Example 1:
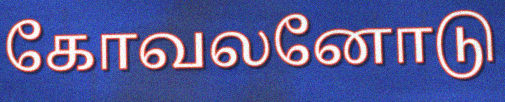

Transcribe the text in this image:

கோவலனோடு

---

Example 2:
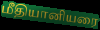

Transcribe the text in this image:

மீதியானியரை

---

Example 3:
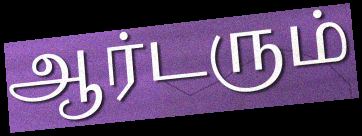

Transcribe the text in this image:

ஆர்டரும்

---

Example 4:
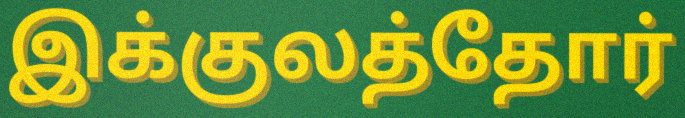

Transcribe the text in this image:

இக்குலத்தோர்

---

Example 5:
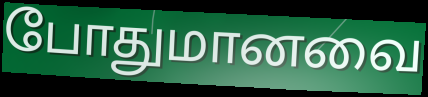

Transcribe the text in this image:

போதுமானவை